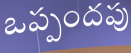
ఒప్పందపు